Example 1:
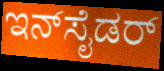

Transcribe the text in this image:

ಇನ್‌ಸೈಡರ್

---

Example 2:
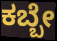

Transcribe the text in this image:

ಕಬ್ಬೇ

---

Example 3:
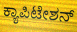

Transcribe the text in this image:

ಕ್ಯಾಪಿಟೇಶನ್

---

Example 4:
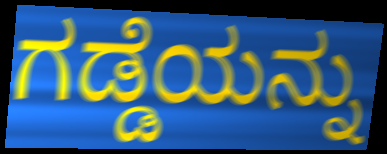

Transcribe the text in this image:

ಗಡ್ಡೆಯನ್ನು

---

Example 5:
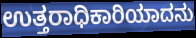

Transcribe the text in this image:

ಉತ್ತರಾಧಿಕಾರಿಯಾದನು